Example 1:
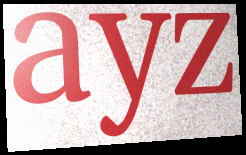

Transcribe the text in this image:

ayz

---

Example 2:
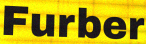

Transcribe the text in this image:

Furber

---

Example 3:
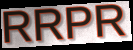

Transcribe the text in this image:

RRPR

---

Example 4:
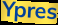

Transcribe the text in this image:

Ypres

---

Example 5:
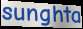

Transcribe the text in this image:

sunghta